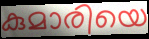
കുമാരിയെ